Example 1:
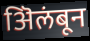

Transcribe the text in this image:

ऄिलंबून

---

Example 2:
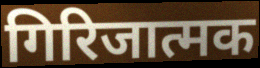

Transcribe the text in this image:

गिरिजात्मक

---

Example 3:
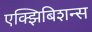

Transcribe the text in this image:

एक्झिबिशन्स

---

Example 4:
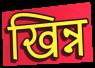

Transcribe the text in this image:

खिन्न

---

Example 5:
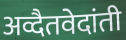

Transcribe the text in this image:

अव्दैतवेदांती